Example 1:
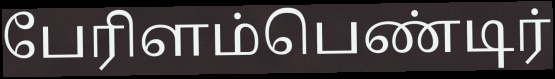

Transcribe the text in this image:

பேரிளம்பெண்டிர்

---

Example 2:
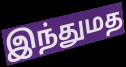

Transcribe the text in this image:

இந்துமத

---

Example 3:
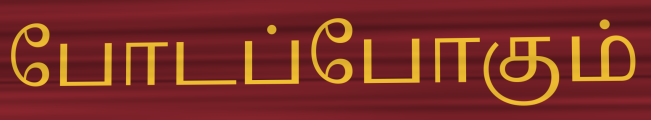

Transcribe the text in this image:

போடப்போகும்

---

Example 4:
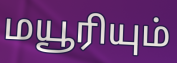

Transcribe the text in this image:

மயூரியும்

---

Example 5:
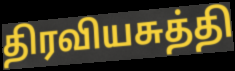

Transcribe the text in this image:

திரவியசுத்தி